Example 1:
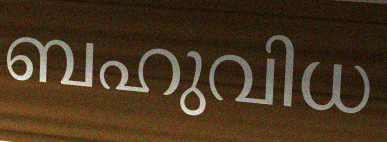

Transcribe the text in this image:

ബഹുവിധ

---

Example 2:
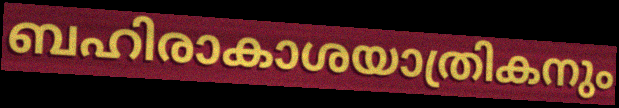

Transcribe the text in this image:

ബഹിരാകാശയാത്രികനും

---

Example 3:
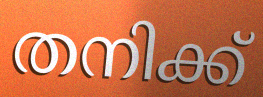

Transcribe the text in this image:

തനിക്ക്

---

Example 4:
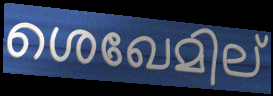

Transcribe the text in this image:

ശെഖേമില്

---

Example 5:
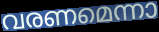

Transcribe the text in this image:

വരണമെന്നാ